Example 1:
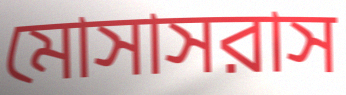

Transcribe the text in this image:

মোসাসরাস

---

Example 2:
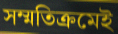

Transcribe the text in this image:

সম্মতিক্রমেই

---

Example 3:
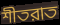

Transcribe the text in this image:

শীতরাত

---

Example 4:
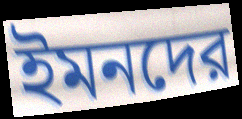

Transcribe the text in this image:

ইমনদের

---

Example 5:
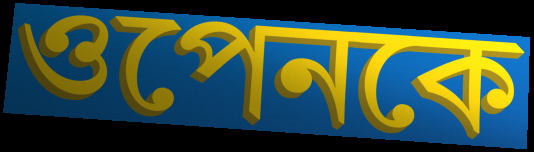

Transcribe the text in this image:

ওপেনকে